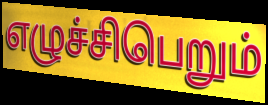
எழுச்சிபெறும்